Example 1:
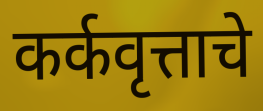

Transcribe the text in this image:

कर्कवृत्ताचे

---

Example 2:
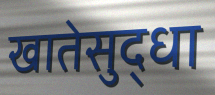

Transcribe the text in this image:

खातेसुद्धा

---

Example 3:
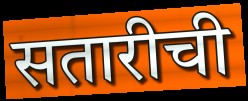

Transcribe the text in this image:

सतारीची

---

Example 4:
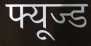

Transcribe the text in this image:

फ्यूज्ड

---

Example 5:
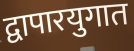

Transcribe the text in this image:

द्वापारयुगात